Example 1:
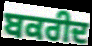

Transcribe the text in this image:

ਬਕਰੀਦ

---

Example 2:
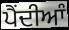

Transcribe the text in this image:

ਪੈੰਦੀਆੰ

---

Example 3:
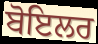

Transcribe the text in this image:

ਬੋਇਲਰ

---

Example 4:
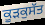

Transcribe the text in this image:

ਕੂੜਕੁਸੱਤ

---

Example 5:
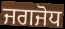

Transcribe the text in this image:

ਜਗਜੋਧ